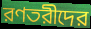
রণতরীদের